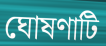
ঘোষণাটি